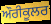
ਔਰੀਕੂਲਰ